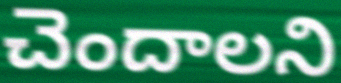
చెందాలని